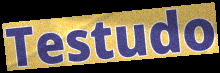
Testudo